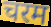
चरम